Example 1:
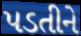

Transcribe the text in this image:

પડતીને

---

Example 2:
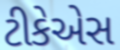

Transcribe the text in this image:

ટીકેએસ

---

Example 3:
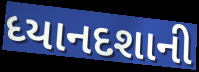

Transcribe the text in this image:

ધ્યાનદશાની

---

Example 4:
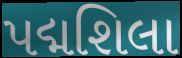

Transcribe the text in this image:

પદ્મશિલા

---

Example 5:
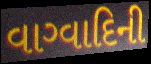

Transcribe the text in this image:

વાગ્વાદિની